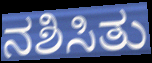
ನಶಿಸಿತು